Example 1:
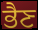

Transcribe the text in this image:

ਭੈਣ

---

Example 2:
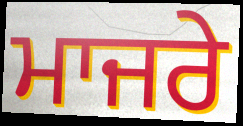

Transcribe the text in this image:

ਮਾਜਰੇ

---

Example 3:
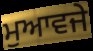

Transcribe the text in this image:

ਮੁਆਵਜੇ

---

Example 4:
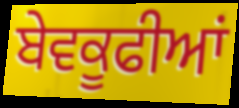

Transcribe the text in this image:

ਬੇਵਕੂਫੀਆਂ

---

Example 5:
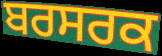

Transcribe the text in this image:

ਬਰਸਰਕ